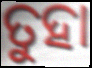
ତୁହା